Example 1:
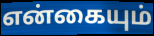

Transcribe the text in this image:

என்கையும்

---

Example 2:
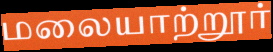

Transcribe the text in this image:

மலையாற்றூர்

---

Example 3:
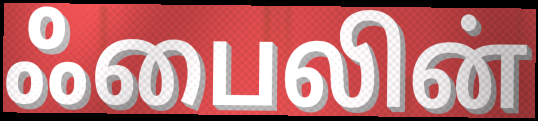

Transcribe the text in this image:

ஃபைலின்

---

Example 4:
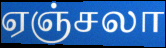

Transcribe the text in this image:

ஏஞ்சலா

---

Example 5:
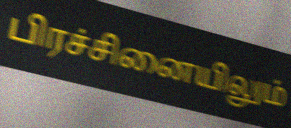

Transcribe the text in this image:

பிரச்சினையிலும்